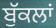
ਬੁੱਕਲਾਂ